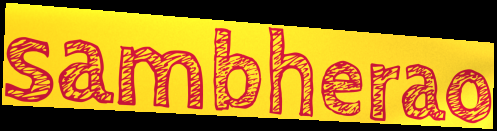
sambherao